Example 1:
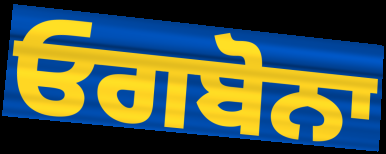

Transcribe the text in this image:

ਓਗਬੋਨਾ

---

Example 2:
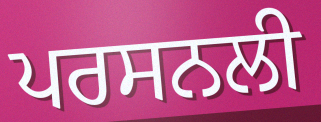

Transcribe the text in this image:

ਪਰਸਨਲੀ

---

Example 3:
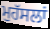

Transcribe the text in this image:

ਮੁਹੱਸਲਾਂ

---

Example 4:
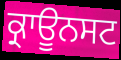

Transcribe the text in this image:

ਕ੍ਰਾਊਨਸਟ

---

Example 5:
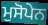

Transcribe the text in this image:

ਮੁਸੋਪੇਨ